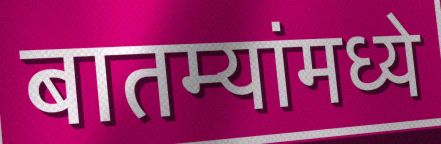
बातम्यांमध्ये